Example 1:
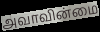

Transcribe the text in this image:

அவாவின்மை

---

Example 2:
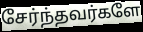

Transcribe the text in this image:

சேர்ந்தவர்களே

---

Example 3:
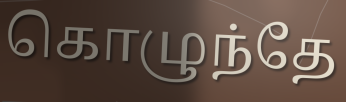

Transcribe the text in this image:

கொழுந்தே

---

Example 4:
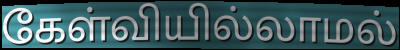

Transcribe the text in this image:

கேள்வியில்லாமல்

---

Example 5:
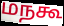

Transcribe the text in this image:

மநகூ